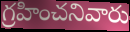
గ్రహించనివారు